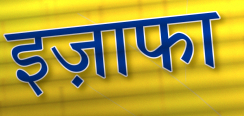
इज़ाफा